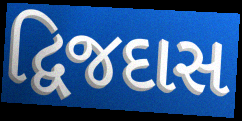
દ્વિજદાસ